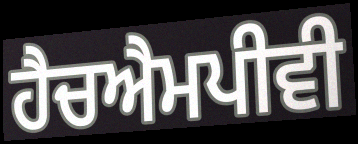
ਹੈਚਐਮਪੀਵੀ